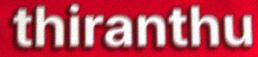
thiranthu